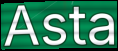
Asta